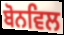
ਬੋਨਵਿਲ